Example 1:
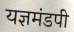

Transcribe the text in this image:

यज्ञमंडपी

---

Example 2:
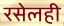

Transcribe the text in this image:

रसेलही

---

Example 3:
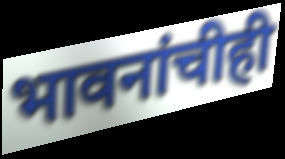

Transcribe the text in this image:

भावनांचीही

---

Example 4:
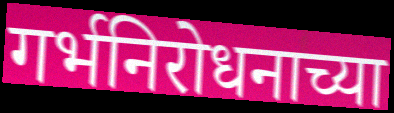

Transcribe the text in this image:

गर्भनिरोधनाच्या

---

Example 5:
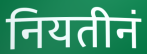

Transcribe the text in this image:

नियतीनं